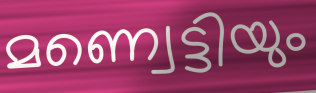
മണ്വെട്ടിയും